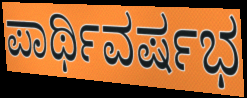
ಪಾರ್ಥಿವರ್ಷಭ